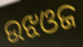
ଉଝଓଜ